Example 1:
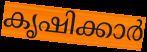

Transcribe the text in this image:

കൃഷിക്കാർ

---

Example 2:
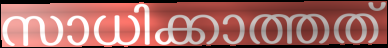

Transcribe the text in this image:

സാധിക്കാത്തത്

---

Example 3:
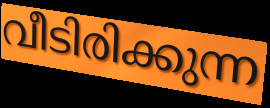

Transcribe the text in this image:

വീടിരിക്കുന്ന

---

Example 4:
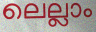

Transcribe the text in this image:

ലെല്ലാം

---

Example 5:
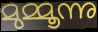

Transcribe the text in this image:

മുമ്മൂന്നു